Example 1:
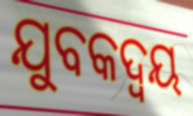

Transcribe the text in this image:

ଯୁବକଦ୍ୱୟ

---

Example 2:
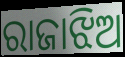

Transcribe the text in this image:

ରାଜାଝିଅ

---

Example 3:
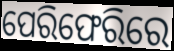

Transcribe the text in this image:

ପେରିଫେରିରେ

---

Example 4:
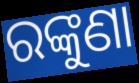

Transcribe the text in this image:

ରଙ୍କୁଣା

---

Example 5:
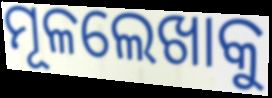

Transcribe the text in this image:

ମୂଳଲେଖାକୁ